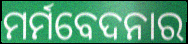
ମର୍ମବେଦନାର